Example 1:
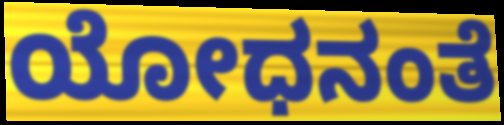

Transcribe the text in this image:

ಯೋಧನಂತೆ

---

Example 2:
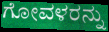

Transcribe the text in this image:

ಗೋವಳರನ್ನು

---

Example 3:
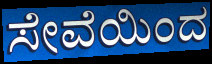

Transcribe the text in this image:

ಸೇವೆಯಿಂದ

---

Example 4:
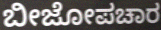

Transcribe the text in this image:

ಬೀಜೋಪಚಾರ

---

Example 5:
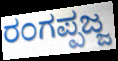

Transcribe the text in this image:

ರಂಗಪ್ಪಜ್ಜ